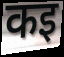
कइ